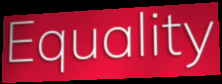
Equality